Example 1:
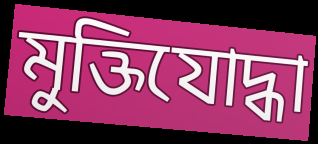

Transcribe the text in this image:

মুক্তিযোদ্ধা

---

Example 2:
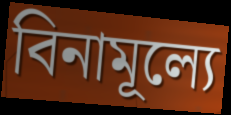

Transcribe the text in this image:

বিনামূল্যে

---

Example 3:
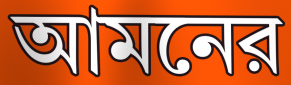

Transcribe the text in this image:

আমনের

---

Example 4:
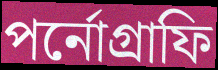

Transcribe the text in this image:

পর্নোগ্রাফি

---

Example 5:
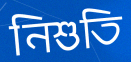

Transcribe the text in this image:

নিশুতি